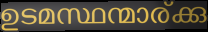
ഉടമസ്ഥന്മാര്ക്കു